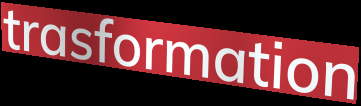
trasformation